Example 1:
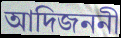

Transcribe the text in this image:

আদিজননী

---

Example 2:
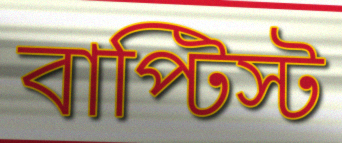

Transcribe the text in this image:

বাপ্টিস্ট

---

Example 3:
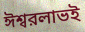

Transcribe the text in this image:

ঈশ্বরলাভই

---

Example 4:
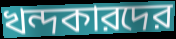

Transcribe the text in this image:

খন্দকারদের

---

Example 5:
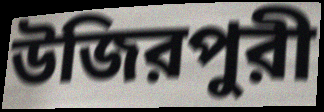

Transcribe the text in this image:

উজিরপুরী